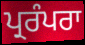
ਪ੍ਰਰੰਪਰਾ